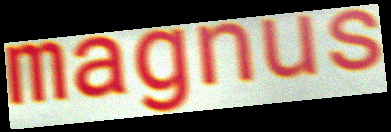
magnus